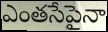
ఎంతసేపైనా